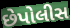
છેપોલીસ